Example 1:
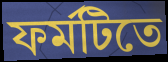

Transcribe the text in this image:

ফর্মটিতে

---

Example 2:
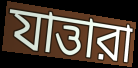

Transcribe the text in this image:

যাত্তারা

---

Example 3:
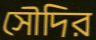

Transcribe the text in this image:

সৌদির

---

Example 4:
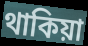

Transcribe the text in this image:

থাকিয়া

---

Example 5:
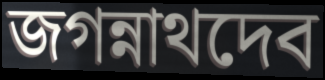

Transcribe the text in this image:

জগন্নাথদেব